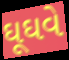
ઘૂઘવે